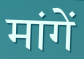
मांगें